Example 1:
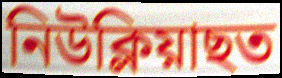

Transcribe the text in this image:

নিউক্লিয়াছত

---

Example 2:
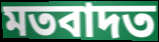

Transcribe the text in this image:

মতবাদত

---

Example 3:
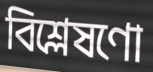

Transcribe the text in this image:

বিশ্লেষণো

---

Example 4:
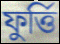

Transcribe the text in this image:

ফুৰ্ত্তি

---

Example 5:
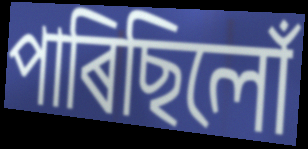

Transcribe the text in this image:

পাৰিছিলোঁ